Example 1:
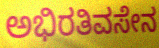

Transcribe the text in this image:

ಅಭಿರತಿವಸೇನ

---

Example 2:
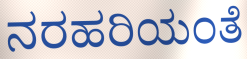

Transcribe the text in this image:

ನರಹರಿಯಂತೆ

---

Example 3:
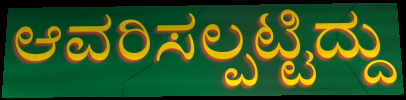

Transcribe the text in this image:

ಆವರಿಸಲ್ಪಟ್ಟಿದ್ದು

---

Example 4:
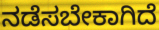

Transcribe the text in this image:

ನಡೆಸಬೇಕಾಗಿದೆ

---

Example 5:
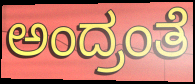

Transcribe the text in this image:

ಅಂದ್ರಂತೆ